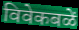
विवेकबळें